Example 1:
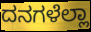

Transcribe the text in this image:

ದನಗಳೆಲ್ಲಾ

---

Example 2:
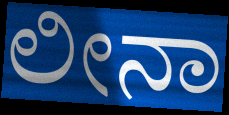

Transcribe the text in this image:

ಲೀನಾ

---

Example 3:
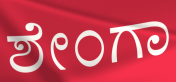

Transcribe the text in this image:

ಶೇಂಗಾ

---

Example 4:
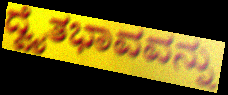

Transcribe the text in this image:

ದ್ವೈತಭಾವವನ್ನು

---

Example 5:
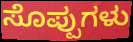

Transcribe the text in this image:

ಸೊಪ್ಪುಗಳು